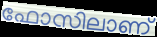
ഫോസിലാണ്